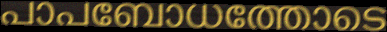
പാപബോധത്തോടെ